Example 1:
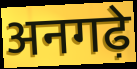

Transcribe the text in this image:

अनगढ़े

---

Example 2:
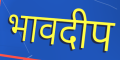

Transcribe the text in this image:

भावदीप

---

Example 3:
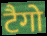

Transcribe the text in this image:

टैगो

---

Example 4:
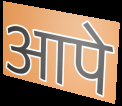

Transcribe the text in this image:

आपे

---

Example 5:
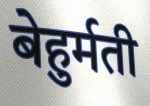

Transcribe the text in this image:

बेहुर्मती